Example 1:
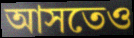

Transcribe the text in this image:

আসতেও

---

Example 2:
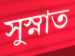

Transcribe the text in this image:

সুস্নাত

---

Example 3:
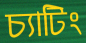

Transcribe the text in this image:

চ্যাটিং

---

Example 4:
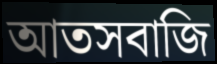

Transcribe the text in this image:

আতসবাজি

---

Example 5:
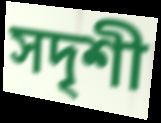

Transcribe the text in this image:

সদৃশী